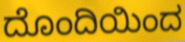
ದೊಂದಿಯಿಂದ